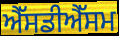
ਐੱਸਡੀਐੱਸਮ